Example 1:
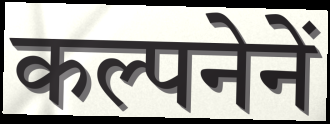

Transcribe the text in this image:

कल्पनेनें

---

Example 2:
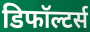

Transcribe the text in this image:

डिफॉल्टर्स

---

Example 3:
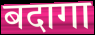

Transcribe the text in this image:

बदागा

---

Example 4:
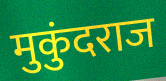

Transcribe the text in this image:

मुकुंदराज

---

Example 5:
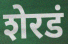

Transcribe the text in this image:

शेरडं